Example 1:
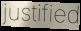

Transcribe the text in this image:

justified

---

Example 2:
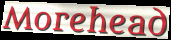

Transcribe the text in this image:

Morehead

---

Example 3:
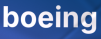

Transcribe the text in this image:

boeing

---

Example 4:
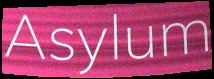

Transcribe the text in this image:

Asylum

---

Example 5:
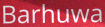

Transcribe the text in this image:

Barhuwa